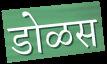
डोळस